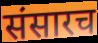
संसारच